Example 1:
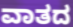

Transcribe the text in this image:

ವಾತದ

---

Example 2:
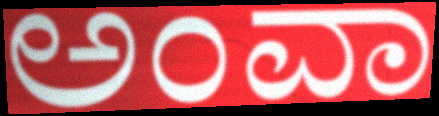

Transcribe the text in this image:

ಅಂವಾ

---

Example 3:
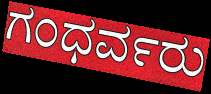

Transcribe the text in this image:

ಗಂಧರ್ವರು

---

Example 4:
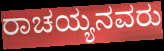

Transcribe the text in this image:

ರಾಚಯ್ಯನವರು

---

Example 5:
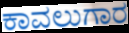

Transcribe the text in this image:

ಕಾವಲುಗಾರ